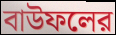
বাউফলের